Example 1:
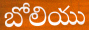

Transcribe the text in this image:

బోలియు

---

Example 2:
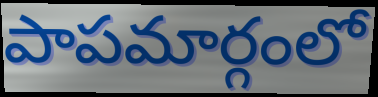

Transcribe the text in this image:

పాపమార్గంలో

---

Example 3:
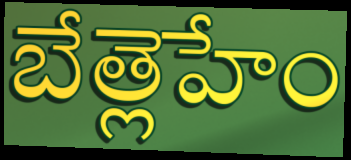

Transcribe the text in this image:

బేత్లెహేం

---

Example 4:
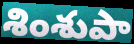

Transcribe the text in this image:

శింశుపా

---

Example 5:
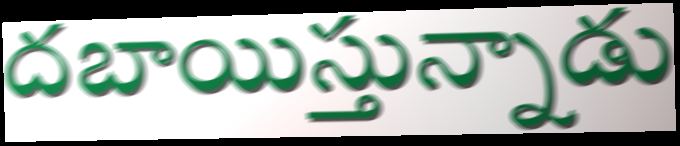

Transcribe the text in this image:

దబాయిస్తున్నాడు